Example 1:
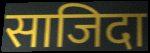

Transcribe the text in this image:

साजिदा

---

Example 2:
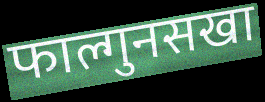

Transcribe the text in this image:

फाल्गुनसखा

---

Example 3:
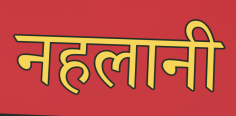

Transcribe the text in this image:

नहलानी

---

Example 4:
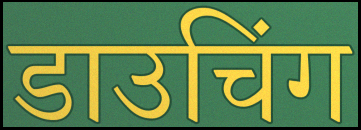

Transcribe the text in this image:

डाउचिंग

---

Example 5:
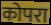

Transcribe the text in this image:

कोपरा